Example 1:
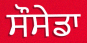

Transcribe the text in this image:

ਸੌਸੇਡਾ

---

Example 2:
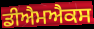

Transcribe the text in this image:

ਡੀਐਮਐਕਸ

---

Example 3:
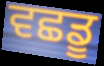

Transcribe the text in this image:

ਵਛਡੂ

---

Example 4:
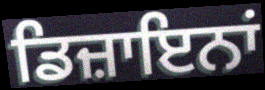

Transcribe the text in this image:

ਡਿਜ਼ਾਇਨਾਂ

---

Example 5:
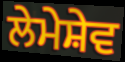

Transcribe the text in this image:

ਲੇਮੇਸ਼ੇਵ